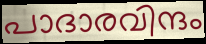
പാദാരവിന്ദം